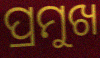
ପ୍ରମୁଖ